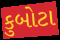
કુબોટા